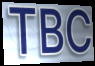
TBC